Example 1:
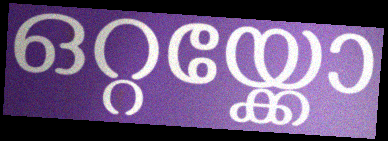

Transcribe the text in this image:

ഒറ്റയ്ക്കോ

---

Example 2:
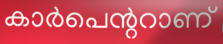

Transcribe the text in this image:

കാർപെന്ററാണ്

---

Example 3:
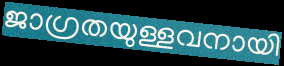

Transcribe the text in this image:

ജാഗ്രതയുള്ളവനായി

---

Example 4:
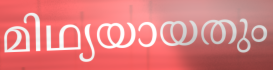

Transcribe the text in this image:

മിഥ്യയായതും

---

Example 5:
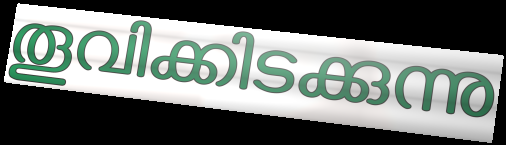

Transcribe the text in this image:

തൂവിക്കിടക്കുന്നു